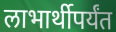
लाभार्थीपर्यंत